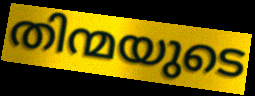
തിന്മയുടെ